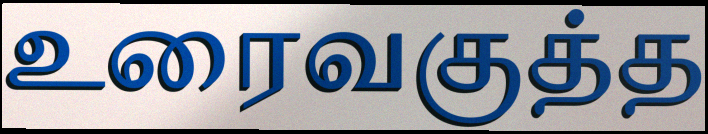
உரைவகுத்த